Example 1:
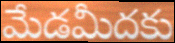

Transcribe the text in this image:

మేడమీదకు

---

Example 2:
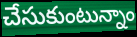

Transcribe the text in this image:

చేసుకుంటున్నాం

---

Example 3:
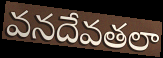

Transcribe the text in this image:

వనదేవతలా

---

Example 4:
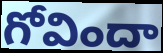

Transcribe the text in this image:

గోవిందా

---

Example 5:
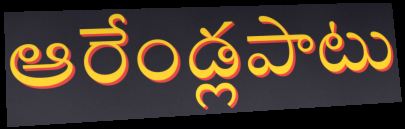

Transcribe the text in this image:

ఆరేండ్లపాటు